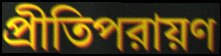
প্রীতিপরায়ণ